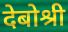
देबोश्री